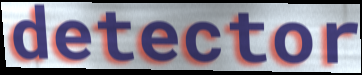
detector